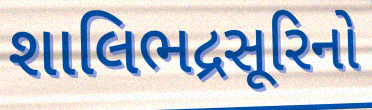
શાલિભદ્રસૂરિનો